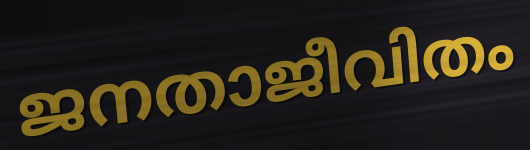
ജനതാജീവിതം